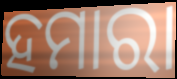
ହମାରା